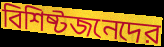
বিশিষ্টজনেদের